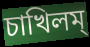
চাখিলম্